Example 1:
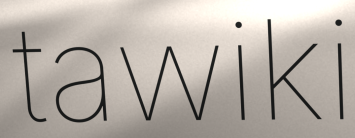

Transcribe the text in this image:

tawiki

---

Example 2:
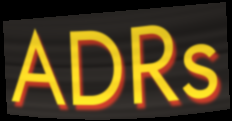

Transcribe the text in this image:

ADRs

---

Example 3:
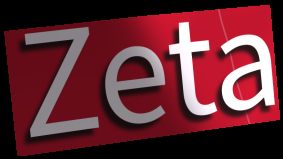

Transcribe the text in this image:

Zeta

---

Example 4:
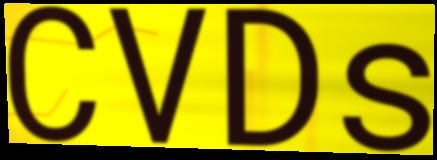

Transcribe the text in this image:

CVDs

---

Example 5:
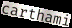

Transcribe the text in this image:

carthami